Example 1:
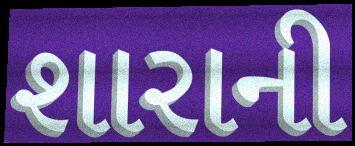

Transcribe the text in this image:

શારાની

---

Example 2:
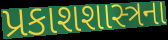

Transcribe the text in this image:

પ્રકાશશાસ્ત્રના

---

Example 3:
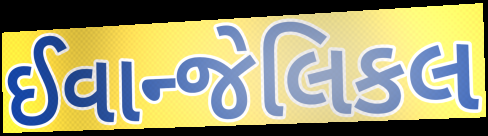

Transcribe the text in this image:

ઈવાન્જેલિકલ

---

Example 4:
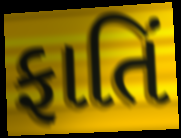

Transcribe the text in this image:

ફાતિં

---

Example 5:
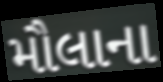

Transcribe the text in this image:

મૌલાના